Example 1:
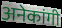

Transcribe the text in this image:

अनेकांगी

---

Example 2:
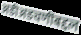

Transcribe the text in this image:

अडीअडचणींबद्दल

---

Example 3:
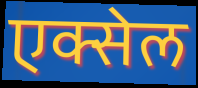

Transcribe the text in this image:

एक्सेल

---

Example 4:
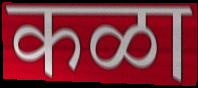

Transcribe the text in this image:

कळा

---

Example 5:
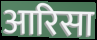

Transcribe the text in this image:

आरिसा